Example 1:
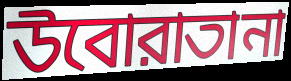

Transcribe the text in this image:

উবোরাতানা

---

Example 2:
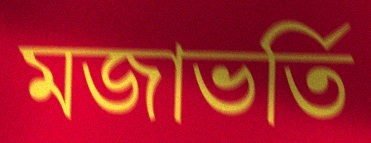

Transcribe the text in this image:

মজাভর্তি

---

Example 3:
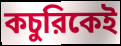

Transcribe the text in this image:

কচুরিকেই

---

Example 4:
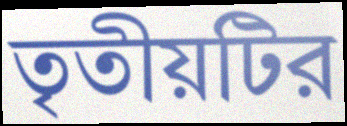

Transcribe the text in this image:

তৃতীয়টির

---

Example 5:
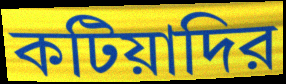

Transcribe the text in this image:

কটিয়াদির